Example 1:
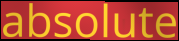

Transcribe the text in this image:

absolute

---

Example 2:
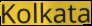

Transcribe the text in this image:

Kolkata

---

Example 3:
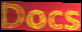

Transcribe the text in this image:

Docs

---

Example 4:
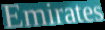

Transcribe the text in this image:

Emirates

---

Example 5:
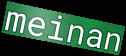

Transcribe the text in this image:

meinan